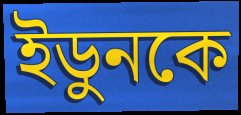
ইডুনকে